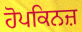
ਹੋਪਕਿਨਜ਼